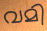
വമി